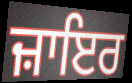
ਜ਼ਾਇਰ